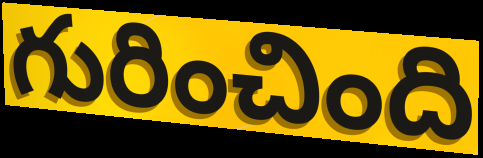
గురించింది